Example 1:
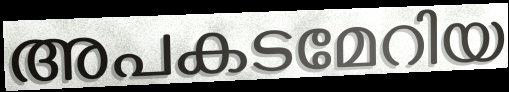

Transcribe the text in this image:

അപകടമേറിയ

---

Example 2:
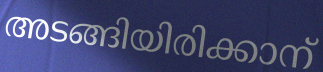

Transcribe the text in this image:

അടങ്ങിയിരിക്കാന്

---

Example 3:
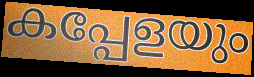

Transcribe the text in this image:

കപ്പേളയും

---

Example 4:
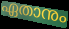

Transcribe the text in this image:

ഏതാനും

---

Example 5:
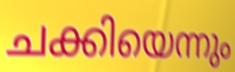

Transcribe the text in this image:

ചക്കിയെന്നും